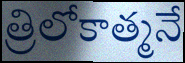
త్రిలోకాత్మనే